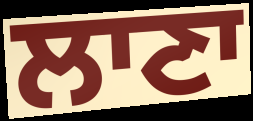
ਲਾਣਾ